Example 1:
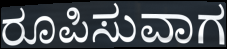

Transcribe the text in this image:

ರೂಪಿಸುವಾಗ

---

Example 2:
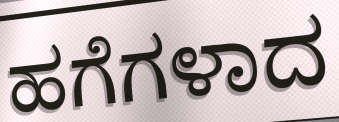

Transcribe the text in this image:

ಹಗೆಗಳಾದ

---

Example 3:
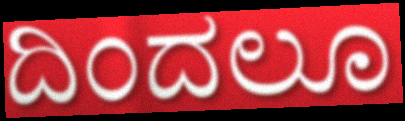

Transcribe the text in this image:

ದಿಂದಲೂ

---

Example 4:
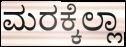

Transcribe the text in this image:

ಮರಕ್ಕೆಲ್ಲಾ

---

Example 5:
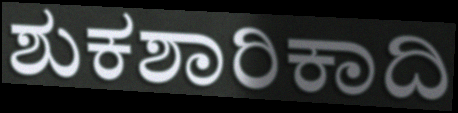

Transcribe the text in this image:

ಶುಕಶಾರಿಕಾದಿ